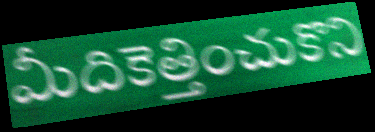
మీదికెత్తించుకొని